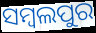
ସମ୍ବଲପୁର